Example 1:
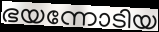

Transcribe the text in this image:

ഭയന്നോടിയ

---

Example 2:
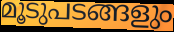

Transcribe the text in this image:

മൂടുപടങ്ങളും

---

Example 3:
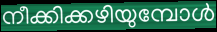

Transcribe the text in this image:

നീക്കിക്കഴിയുമ്പോൾ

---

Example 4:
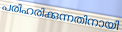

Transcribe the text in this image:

പരിഹരിക്കുന്നതിനായി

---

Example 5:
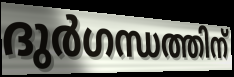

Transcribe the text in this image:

ദുർഗന്ധത്തിന്